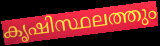
കൃഷിസ്ഥലത്തും